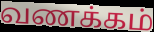
வணக்கம்